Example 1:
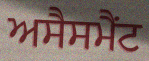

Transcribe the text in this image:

ਅਸੈਸਮੈਂਟ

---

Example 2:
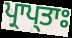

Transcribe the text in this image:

ਪ੍ਰਾਪ੍ਤਾਃ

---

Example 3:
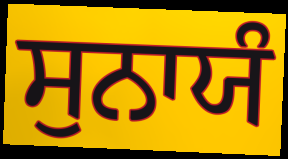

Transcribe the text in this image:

ਸੁਨਾਯੰ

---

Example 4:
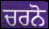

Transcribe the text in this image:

ਚਰਨੋ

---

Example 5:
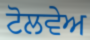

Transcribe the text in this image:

ਟੋਲਵੇਅ